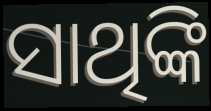
ସାଥିଙ୍କି